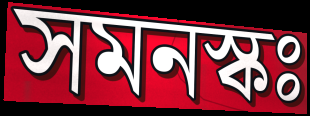
সমনস্কঃ